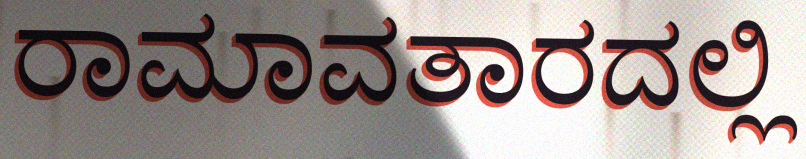
ರಾಮಾವತಾರದಲ್ಲಿ